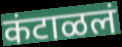
कंटाळलं